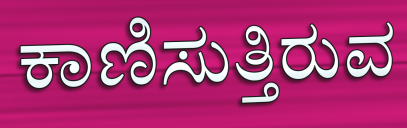
ಕಾಣಿಸುತ್ತಿರುವ